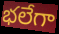
భలేగా